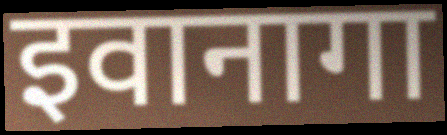
इवानागा